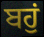
ਬਹੁਂ